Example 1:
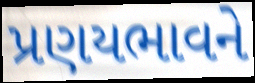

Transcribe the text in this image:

પ્રણયભાવને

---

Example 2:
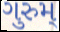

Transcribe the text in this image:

ગુરુમ્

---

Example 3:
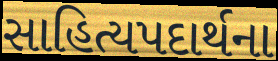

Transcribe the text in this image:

સાહિત્યપદાર્થના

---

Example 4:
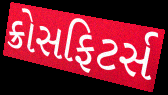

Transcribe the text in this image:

ક્રોસફિટર્સ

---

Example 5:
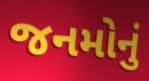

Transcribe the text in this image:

જનમોનું